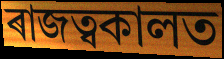
ৰাজত্বকালত